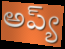
అప్య్